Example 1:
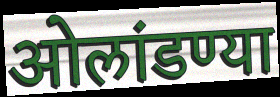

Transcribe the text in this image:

ओलांडण्या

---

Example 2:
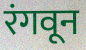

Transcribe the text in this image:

रंगवून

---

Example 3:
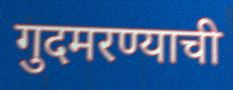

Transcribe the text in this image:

गुदमरण्याची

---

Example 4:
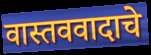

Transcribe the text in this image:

वास्तववादाचे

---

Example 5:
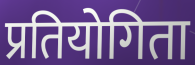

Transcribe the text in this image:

प्रतियोगिता